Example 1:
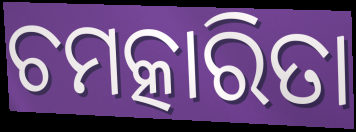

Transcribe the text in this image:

ଚମତ୍କାରିତା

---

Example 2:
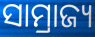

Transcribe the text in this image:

ସାମ୍ରାଜ୍ଯ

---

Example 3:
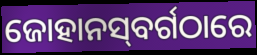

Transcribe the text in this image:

ଜୋହାନସ୍‌ବର୍ଗଠାରେ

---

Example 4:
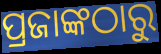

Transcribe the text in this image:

ପ୍ରଜାଙ୍କଠାରୁ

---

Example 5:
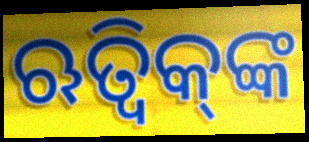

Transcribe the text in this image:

ଋତ୍ୱିକ୍‌ଙ୍କ